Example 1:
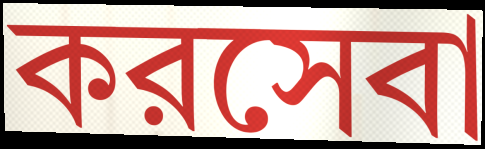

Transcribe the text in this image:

করসেবা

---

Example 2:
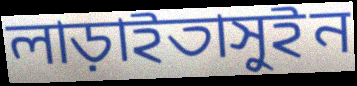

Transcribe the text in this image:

লাড়াইতাসুইন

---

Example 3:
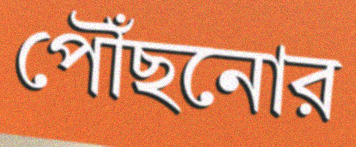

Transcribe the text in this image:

পৌঁছনোর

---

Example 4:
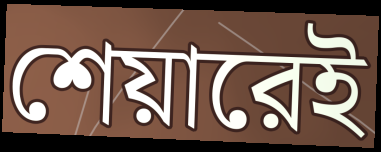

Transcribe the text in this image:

শেয়ারেই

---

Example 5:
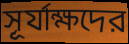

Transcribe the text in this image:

সূর্যাক্ষদের